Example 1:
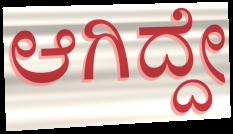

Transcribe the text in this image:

ಆಗಿದ್ದೇ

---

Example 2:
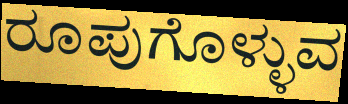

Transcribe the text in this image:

ರೂಪುಗೊಳ್ಳುವ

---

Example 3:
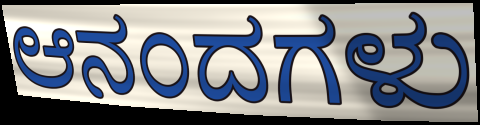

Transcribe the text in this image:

ಆನಂದಗಳು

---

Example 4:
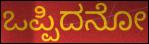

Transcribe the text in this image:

ಒಪ್ಪಿದನೋ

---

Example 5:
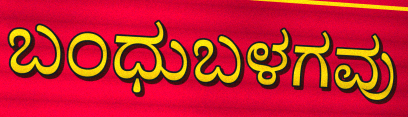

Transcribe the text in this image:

ಬಂಧುಬಳಗವು